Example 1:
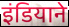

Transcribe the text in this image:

इंडियाने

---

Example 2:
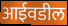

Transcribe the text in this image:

आईवडील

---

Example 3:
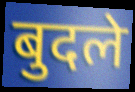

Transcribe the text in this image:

बुदले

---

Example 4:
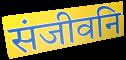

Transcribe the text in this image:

संजीवनि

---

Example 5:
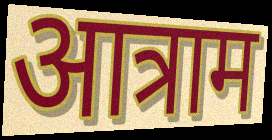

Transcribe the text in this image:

आत्राम